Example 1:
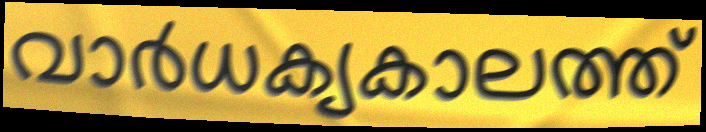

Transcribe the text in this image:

വാർധക്യകാലത്ത്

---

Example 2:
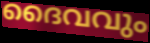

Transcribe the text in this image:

ദൈവവും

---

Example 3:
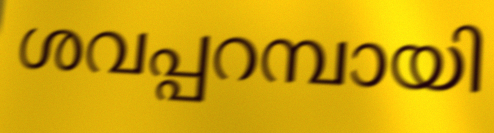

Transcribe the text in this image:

ശവപ്പറമ്പായി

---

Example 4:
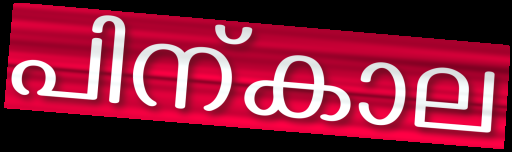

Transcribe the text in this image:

പിന്കാല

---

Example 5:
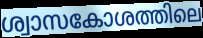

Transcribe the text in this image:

ശ്വാസകോശത്തിലെ